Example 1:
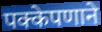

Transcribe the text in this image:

पक्केपणाने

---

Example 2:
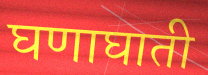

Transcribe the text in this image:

घणाघाती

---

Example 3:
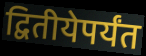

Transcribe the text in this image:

द्वितीयेपर्यंत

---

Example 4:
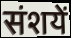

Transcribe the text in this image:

संशयें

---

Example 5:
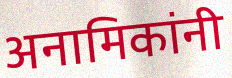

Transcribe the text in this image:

अनामिकांनी